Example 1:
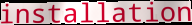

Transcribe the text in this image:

installation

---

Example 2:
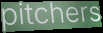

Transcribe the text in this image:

pitchers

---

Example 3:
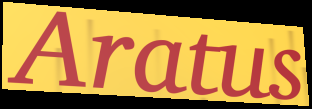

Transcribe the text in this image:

Aratus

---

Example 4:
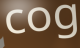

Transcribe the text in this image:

cog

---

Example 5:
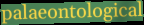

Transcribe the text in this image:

palaeontological